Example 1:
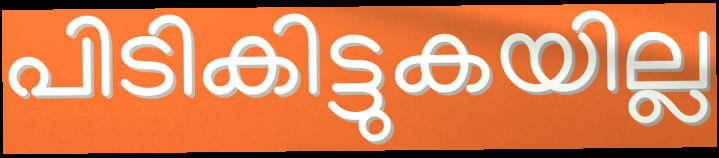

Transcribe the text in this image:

പിടികിട്ടുകയില്ല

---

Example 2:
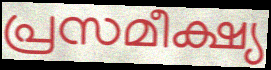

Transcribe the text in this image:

പ്രസമീക്ഷ്യ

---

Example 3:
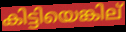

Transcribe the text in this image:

കിട്ടിയെങ്കില്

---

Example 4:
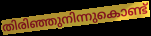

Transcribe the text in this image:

തിരിഞ്ഞുനിന്നുകൊണ്ട്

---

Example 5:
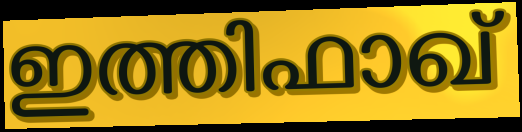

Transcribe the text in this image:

ഇത്തിഫാഖ്